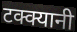
टक्क्यानी